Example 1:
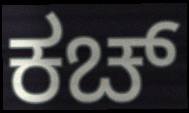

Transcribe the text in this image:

ಕಚ್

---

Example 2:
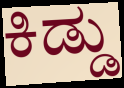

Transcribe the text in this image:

ಕಿಡ್ಡು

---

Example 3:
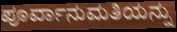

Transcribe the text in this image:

ಪೂರ್ವಾನುಮತಿಯನ್ನು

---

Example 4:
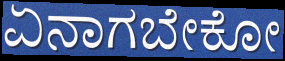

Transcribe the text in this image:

ಏನಾಗಬೇಕೋ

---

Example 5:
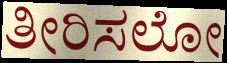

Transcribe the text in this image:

ತೀರಿಸಲೋ